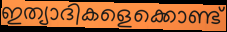
ഇത്യാദികളെക്കൊണ്ട്